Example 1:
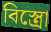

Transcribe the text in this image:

বিস্ত্রো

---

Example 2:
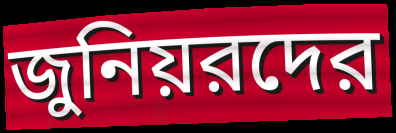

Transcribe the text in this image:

জুনিয়রদের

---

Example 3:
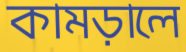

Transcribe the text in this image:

কামড়ালে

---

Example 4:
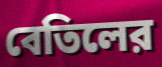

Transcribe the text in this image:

বেতিলের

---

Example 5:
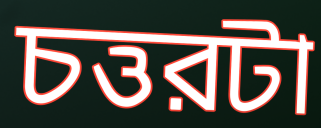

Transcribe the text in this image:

চত্তরটা